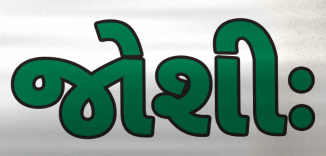
જોશીઃ